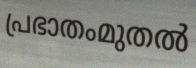
പ്രഭാതംമുതൽ